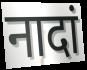
नादां